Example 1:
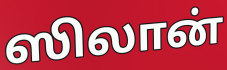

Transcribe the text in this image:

ஸிலான்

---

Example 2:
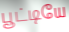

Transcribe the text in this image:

பூட்டியே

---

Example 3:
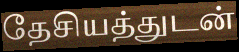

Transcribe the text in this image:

தேசியத்துடன்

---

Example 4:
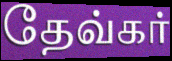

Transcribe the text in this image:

தேவ்கர்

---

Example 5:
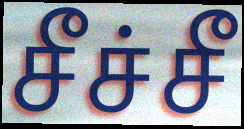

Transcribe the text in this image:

சீச்சீ